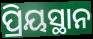
ପ୍ରିୟସ୍ଥାନ